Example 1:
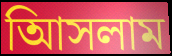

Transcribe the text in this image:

আিসলাম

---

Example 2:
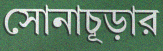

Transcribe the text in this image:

সোনাচূড়ার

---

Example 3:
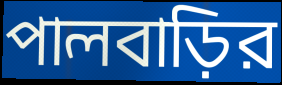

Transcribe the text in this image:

পালবাড়ির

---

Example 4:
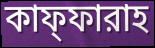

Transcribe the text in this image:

কাফ্ফারাহ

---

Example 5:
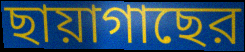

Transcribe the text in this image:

ছায়াগাছের